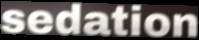
sedation